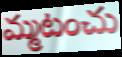
మ్మటంచు